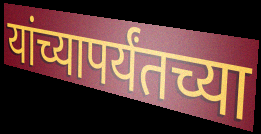
यांच्यापर्यंतच्या